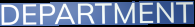
DEPARTMENT